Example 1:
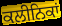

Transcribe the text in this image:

ਕਲੀਨਿਕਾਂ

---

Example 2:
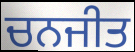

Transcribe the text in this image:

ਚਨਜੀਤ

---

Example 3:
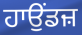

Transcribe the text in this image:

ਹਾਉਂਡਜ਼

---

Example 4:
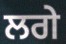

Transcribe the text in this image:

ਲਗੇ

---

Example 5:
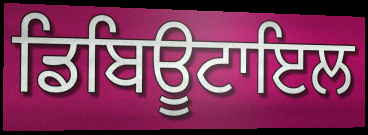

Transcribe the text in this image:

ਡਿਬਿਊਟਾਇਲ